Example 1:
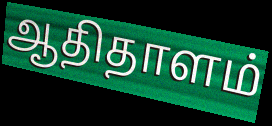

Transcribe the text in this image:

ஆதிதாளம்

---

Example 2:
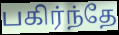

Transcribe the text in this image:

பகிர்ந்தே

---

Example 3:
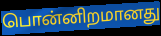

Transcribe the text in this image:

பொன்னிறமானது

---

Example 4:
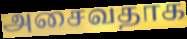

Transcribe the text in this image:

அசைவதாக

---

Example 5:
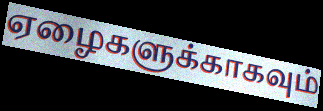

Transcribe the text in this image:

ஏழைகளுக்காகவும்